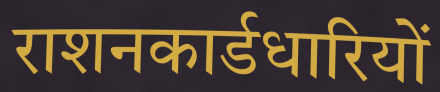
राशनकार्डधारियों